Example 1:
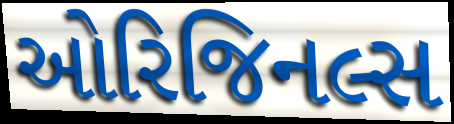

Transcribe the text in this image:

ઓરિજિનલ્સ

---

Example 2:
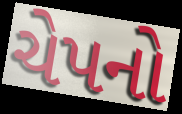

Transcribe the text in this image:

ચેપનો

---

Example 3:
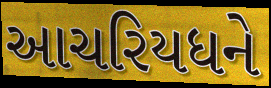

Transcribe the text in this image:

આચરિયધને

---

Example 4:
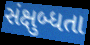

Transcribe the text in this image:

સંક્ષુબ્ધતા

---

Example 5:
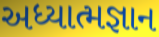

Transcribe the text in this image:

અધ્યાત્મજ્ઞાન